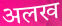
अलख